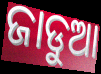
ଜାଡୁଆ